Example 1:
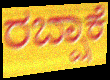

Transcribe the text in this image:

ರಬ್ಷಾಕೆ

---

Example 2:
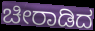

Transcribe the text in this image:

ಚೀರಾಡಿದ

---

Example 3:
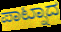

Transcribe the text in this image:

ಪಾಟ್ನಾದ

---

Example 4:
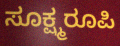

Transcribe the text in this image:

ಸೂಕ್ಷ್ಮರೂಪಿ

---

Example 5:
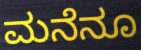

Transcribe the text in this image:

ಮನೆನೂ